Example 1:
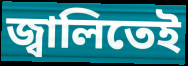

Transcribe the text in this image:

জ্বালিতেই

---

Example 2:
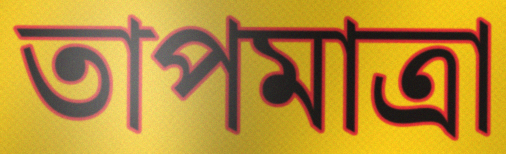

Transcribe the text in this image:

তাপমাত্রা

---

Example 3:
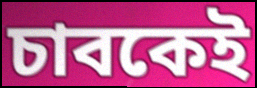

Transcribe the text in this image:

চাবকেই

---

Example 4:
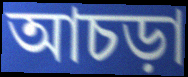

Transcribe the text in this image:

আচড়া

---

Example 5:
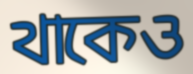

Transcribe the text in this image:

থাকেও